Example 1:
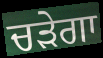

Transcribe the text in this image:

ਚੜੇਗਾ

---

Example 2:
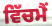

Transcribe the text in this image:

ਵਿੱਚਮੈਂ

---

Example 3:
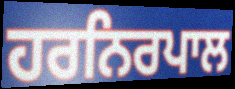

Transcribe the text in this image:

ਹਰਨਿਰਪਾਲ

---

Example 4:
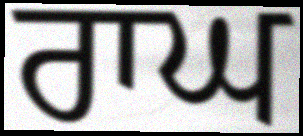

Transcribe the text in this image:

ਰਾਘ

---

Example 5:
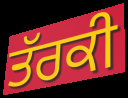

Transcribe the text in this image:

ਤੱਰਕੀ